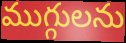
ముగ్గులను